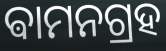
ଵାମନଗ୍ରହ